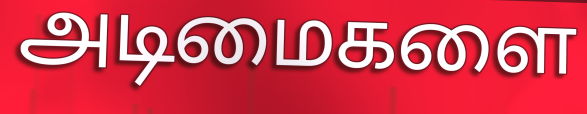
அடிமைகளை